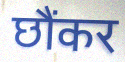
छौंकर